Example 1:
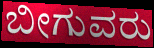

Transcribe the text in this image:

ಬೀಗುವರು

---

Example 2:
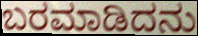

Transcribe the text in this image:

ಬರಮಾಡಿದನು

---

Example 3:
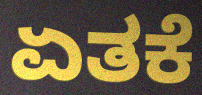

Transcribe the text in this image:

ಏತಕೆ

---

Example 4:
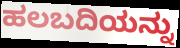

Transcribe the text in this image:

ಹಲಬದಿಯನ್ನು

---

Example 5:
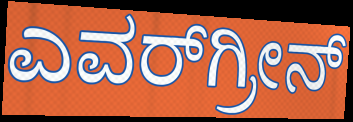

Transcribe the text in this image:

ಎವರ್‌ಗ್ರೀನ್